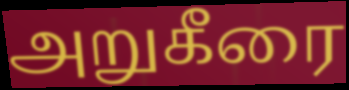
அறுகீரை